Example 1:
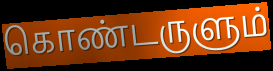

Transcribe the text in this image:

கொண்டருளும்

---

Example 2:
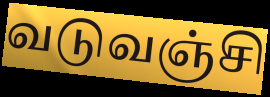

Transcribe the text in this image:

வடுவஞ்சி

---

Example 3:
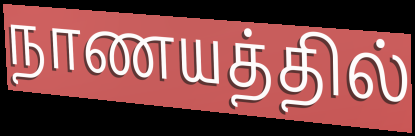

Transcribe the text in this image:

நாணயத்தில்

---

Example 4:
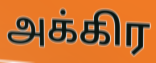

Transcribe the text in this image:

அக்கிர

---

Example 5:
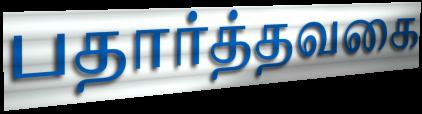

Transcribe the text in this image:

பதார்த்தவகை